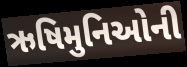
ઋષિમુનિઓની